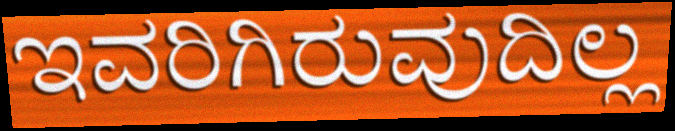
ಇವರಿಗಿರುವುದಿಲ್ಲ